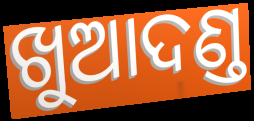
ଖୁଆଦଣ୍ଡ